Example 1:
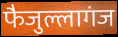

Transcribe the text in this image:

फैजुल्लागंज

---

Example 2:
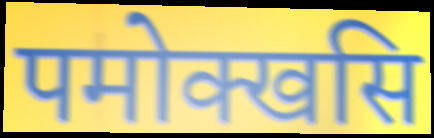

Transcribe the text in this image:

पमोक्खसि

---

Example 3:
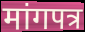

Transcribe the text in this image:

मांगपत्र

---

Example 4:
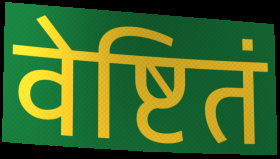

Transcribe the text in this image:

वेष्टितं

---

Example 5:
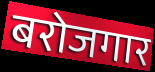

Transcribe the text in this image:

बरोजगार